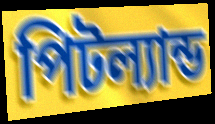
পিটল্যান্ড